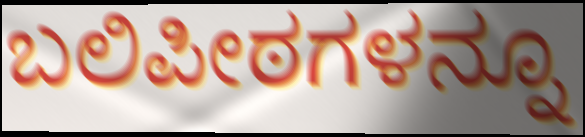
ಬಲಿಪೀಠಗಳನ್ನೂ